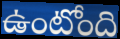
ఉంటోంది